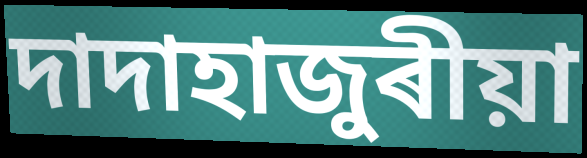
দাদাহাজুৰীয়া